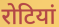
रोटियां